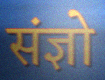
संज्ञो